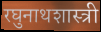
रघुनाथशास्त्री